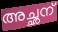
അച്ഛന്